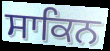
ਸਾਕਿਨ